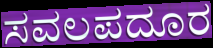
ಸವಲಪದೂರ